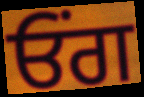
ਓਂਗ